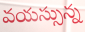
వయస్సున్న